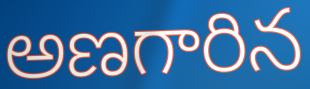
అణగారిన